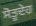
ਸੋਤੂਦੇਹ